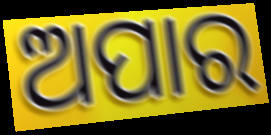
ଅପାର